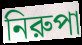
নিরুপা